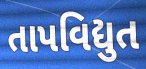
તાપવિદ્યુત